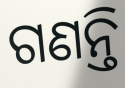
ଗଣନ୍ତି